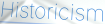
Historicism